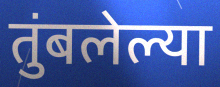
तुंबलेल्या